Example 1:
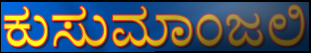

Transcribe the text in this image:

ಕುಸುಮಾಂಜಲಿ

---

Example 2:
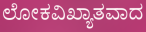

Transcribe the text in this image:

ಲೋಕವಿಖ್ಯಾತವಾದ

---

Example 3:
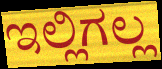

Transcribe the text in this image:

ಇಲ್ಲಿಗಲ್ಲ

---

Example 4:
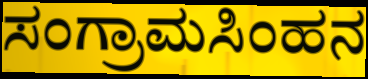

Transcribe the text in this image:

ಸಂಗ್ರಾಮಸಿಂಹನ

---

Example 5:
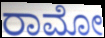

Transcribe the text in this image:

ರಾಮೋ